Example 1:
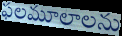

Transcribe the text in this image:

ఫలమూలాలను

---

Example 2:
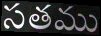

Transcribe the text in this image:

సతము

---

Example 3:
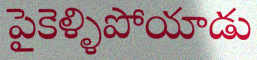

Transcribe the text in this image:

పైకెళ్ళిపోయాడు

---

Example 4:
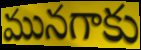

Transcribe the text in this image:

మునగాకు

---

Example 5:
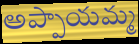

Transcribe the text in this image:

అప్పాయమ్మ